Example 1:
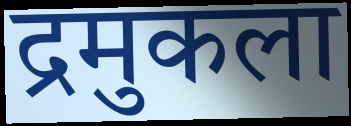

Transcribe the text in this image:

द्रमुकला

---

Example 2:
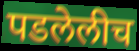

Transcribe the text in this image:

पडलेलीच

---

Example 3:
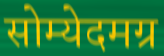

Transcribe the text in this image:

सोम्येदमग्र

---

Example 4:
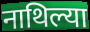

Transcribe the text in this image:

नाथिल्या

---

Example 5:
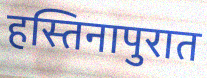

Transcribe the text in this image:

हस्तिनापुरात